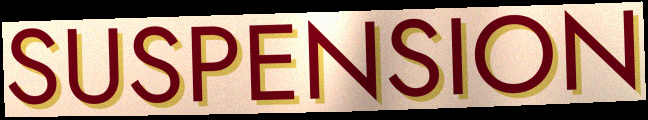
SUSPENSION